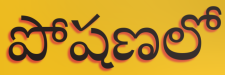
పోషణలో